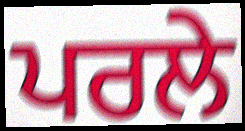
ਪਰਲੇ